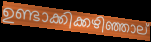
ഉണ്ടാക്കിക്കഴിഞ്ഞാല്